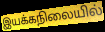
இயக்கநிலையில்